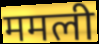
ममली